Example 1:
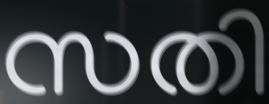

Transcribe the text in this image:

സതി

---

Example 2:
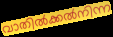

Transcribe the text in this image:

വാതിൽക്കൽനിന്ന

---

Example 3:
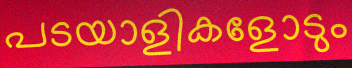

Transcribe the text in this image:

പടയാളികളോടും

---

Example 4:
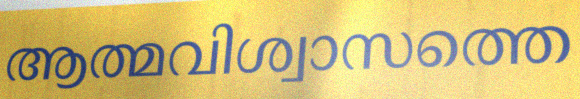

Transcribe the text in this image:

ആത്മവിശ്വാസത്തെ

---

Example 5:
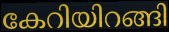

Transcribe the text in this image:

കേറിയിറങ്ങി